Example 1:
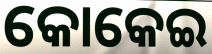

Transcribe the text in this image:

କୋକେଇ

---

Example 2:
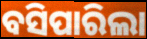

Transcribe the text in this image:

ବସିପାରିଲା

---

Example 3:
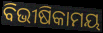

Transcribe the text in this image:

ବିଭୀଷିକାମୟ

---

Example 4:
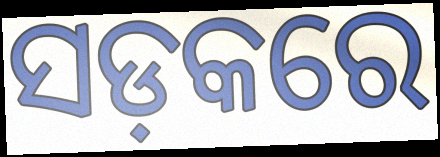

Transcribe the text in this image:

ସଡ଼କରେ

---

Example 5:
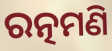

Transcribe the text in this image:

ରତ୍ନମଣି